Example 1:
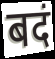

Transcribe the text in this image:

बदं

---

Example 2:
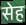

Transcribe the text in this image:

सेह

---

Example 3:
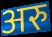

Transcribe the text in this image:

अरु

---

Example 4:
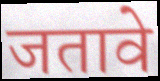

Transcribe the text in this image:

जतावे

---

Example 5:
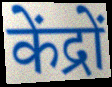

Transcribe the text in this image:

केंद्रों